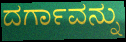
ದರ್ಗಾವನ್ನು